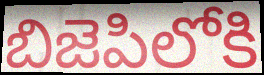
బిజెపిలోకి